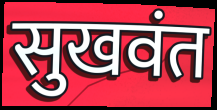
सुखवंत